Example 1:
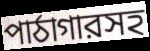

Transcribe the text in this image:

পাঠাগারসহ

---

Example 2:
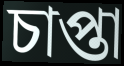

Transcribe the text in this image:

চাপ্তা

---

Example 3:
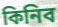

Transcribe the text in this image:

কিনিব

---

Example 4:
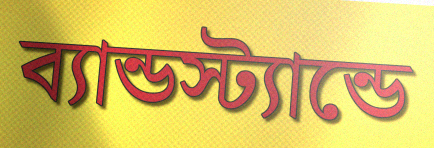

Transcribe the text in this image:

ব্যান্ডস্ট্যান্ডে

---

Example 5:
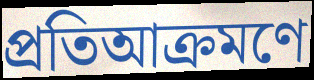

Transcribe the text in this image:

প্রতিআক্রমণে